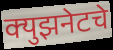
क्युझनेटचे